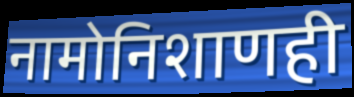
नामोनिशाणही